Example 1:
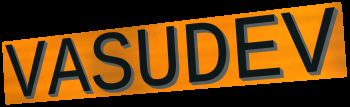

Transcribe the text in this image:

VASUDEV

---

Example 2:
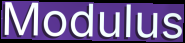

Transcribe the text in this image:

Modulus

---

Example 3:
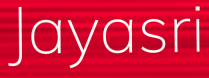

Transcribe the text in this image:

Jayasri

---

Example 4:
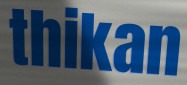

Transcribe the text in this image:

thikan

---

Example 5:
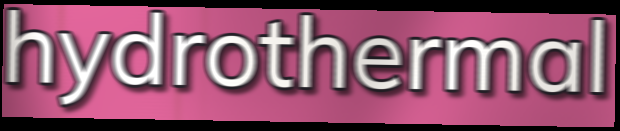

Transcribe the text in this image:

hydrothermal